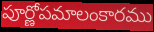
పూర్ణోపమాలంకారము